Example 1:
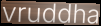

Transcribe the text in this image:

vruddha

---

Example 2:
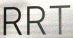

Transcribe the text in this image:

RRT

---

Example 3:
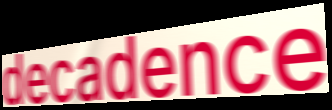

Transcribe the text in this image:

decadence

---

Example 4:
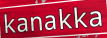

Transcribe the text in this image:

kanakka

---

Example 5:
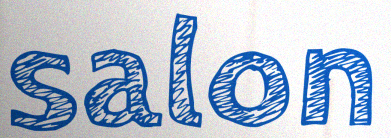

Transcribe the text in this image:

salon